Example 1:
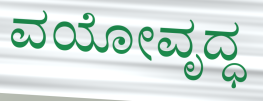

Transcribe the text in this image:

ವಯೋವೃದ್ಧ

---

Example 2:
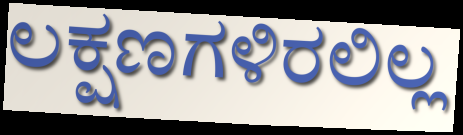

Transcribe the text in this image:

ಲಕ್ಷಣಗಳಿರಲಿಲ್ಲ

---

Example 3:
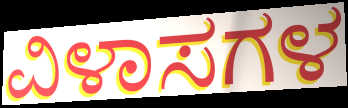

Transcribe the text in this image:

ವಿಳಾಸಗಳ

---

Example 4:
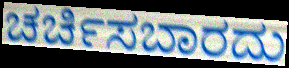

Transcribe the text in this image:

ಚರ್ಚಿಸಬಾರದು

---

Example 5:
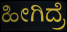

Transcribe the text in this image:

ಹೀಗಿದ್ರೆ